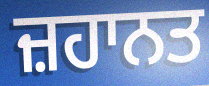
ਜ਼ਹਾਨਤ